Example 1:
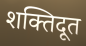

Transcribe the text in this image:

शक्तिदूत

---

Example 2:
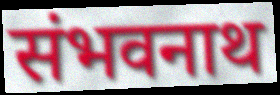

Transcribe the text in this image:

संभवनाथ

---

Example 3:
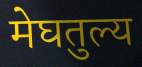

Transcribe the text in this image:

मेघतुल्य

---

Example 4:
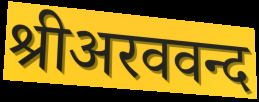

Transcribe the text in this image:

श्रीअरववन्द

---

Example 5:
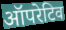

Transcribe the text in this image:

ऑपरेटिव